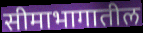
सीमाभागातील